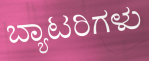
ಬ್ಯಾಟರಿಗಳು